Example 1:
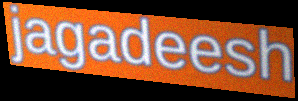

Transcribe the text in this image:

jagadeesh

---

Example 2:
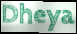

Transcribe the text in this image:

Dheya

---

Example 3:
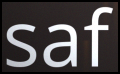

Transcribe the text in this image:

saf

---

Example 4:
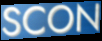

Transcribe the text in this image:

SCON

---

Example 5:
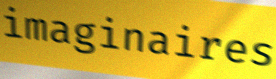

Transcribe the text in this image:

imaginaires